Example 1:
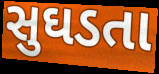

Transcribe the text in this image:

સુઘડતા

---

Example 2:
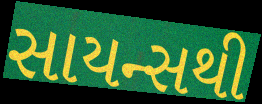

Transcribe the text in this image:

સાયન્સથી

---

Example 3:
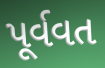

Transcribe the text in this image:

પૂર્વવત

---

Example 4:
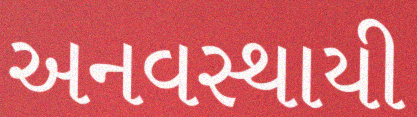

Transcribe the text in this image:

અનવસ્થાયી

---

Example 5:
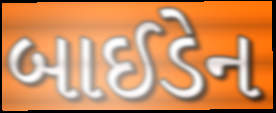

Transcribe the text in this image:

બાઈડેન